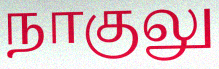
நாகுலு